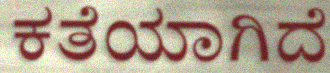
ಕತೆಯಾಗಿದೆ